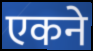
एकने